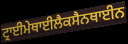
ਟ੍ਰਾਈਮੇਥਾਈਲੈਕਸੈਨਥਾਈਨ